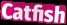
Catfish